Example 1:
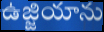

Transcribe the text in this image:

ఉజ్జియాను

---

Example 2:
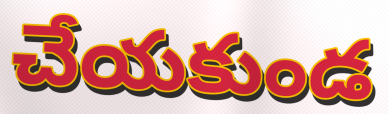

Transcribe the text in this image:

చేయకుండ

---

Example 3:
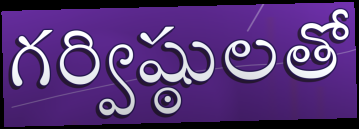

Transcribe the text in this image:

గర్విష్ఠులతో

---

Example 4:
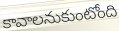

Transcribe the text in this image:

కావాలనుకుంటోంది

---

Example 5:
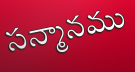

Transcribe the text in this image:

సన్మానము